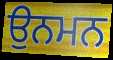
ਉਨਮਨ